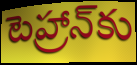
టెహ్రాన్‌కు